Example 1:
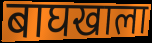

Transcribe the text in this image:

बाघखाला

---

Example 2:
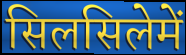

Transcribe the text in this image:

सिलसिलेमें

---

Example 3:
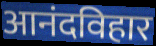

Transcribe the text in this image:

आनंदविहार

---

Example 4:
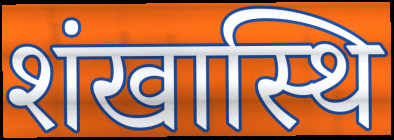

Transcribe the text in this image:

शंखास्थि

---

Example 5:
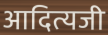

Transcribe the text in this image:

आदित्यजी